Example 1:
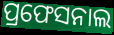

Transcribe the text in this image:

ପ୍ରଫେସନାଲ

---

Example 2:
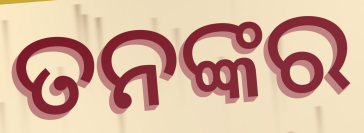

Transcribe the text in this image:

ତନଙ୍କର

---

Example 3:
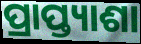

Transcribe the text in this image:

ପ୍ରାପ୍ତ୍ୟାଶା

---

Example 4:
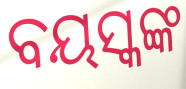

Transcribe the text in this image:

ବୟସ୍କଙ୍କ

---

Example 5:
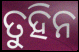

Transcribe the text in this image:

ତୁହିନ